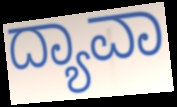
ದ್ಯಾವಾ